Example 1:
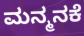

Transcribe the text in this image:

ಮನ್ಮನಕೆ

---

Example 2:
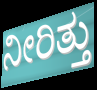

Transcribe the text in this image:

ನೀರಿತ್ತು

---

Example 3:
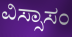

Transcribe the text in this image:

ವಿಸ್ಸಾಸಂ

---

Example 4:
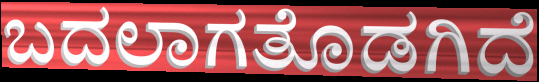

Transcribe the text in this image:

ಬದಲಾಗತೊಡಗಿದೆ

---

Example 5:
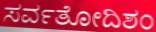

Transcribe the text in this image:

ಸರ್ವತೋದಿಶಂ